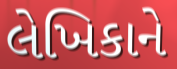
લેખિકાને